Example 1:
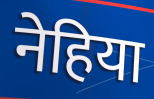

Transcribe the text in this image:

नेहिया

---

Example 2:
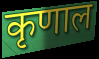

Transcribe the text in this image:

कृणाल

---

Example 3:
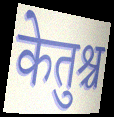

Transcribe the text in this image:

केतुश्च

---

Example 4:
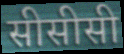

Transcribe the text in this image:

सीसीसी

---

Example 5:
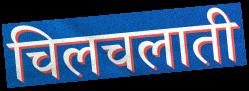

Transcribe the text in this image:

चिलचलाती